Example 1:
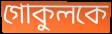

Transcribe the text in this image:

গোকুলকে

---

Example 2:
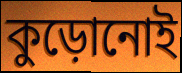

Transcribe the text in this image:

কুড়োনোই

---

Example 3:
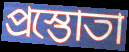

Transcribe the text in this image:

প্রস্তোতা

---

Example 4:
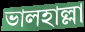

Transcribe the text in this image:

ভালহাল্লা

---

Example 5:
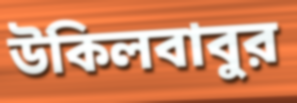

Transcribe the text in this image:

উকিলবাবুর